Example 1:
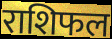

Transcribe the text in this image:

राशिफल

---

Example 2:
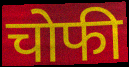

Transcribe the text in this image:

चोफी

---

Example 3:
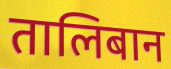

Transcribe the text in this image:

तालिबान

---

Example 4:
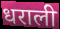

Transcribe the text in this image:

धराली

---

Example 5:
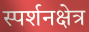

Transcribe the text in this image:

स्पर्शनक्षेत्र